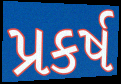
પ્રકર્ષ